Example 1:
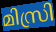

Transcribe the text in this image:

മിസ്രി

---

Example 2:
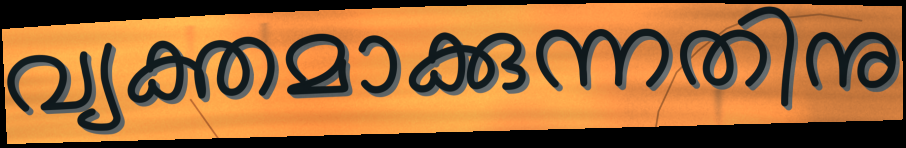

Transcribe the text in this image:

വ്യക്തമാക്കുന്നതിനു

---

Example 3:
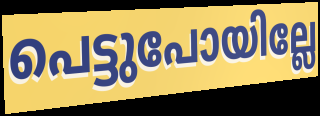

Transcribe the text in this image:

പെട്ടുപോയില്ലേ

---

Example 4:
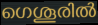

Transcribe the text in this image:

ഗെശൂരിൽ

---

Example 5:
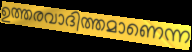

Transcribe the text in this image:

ഉത്തരവാദിത്തമാണെന്ന